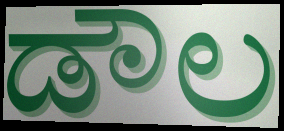
ಡೌಲ